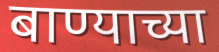
बाण्याच्या